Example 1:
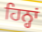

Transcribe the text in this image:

ਹਿਨ੍ਹਾਂ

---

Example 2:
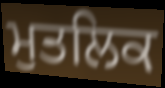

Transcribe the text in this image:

ਮੁਤਲਿਕ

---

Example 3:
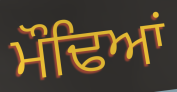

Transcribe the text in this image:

ਮੌਢਿਆਂ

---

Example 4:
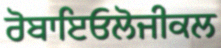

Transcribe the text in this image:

ਰੋਬਾਇਓਲੋਜੀਕਲ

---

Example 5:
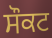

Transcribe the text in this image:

ਸੌਕਟ